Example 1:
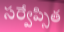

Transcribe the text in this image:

సర్వేప్సిత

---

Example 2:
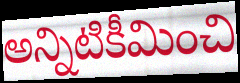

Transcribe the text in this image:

అన్నిటికీమించి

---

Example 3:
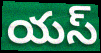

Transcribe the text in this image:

యస్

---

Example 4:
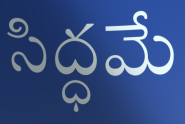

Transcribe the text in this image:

సిద్ధమే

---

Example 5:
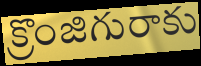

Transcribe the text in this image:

క్రొంజిగురాకు